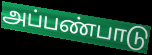
அப்பண்பாடு